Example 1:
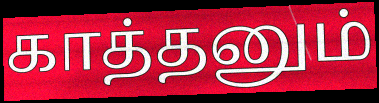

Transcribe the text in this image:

காத்தனும்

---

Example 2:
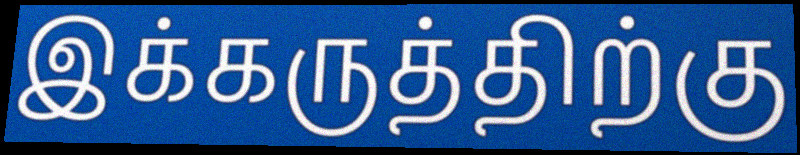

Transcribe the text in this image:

இக்கருத்திற்கு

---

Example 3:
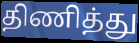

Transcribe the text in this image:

திணித்து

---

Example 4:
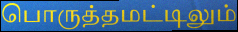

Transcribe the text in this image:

பொருத்தமட்டிலும்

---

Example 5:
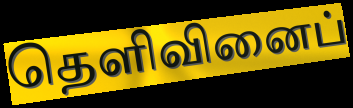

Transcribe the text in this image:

தெளிவினைப்